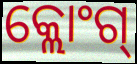
କ୍ଲୋଂଗ୍